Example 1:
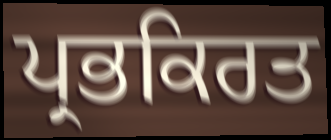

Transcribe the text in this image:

ਪ੍ਰਭਕਿਰਤ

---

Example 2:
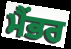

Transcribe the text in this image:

ਮੈਂਭਰ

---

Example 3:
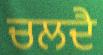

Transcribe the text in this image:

ਚਲਦੈ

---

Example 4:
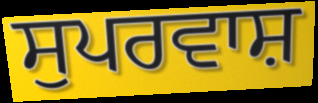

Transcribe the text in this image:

ਸੁਪਰਵਾਸ਼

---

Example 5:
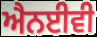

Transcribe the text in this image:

ਐਨਈਵੀ